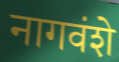
नागवंशे